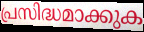
പ്രസിദ്ധമാക്കുക